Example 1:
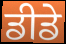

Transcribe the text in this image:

ਡੀਡੇ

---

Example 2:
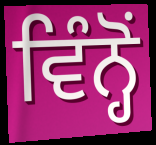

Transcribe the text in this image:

ਵਿੰਨ੍ਹੋਂ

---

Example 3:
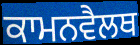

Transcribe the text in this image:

ਕਾਮਨਵੈਲਥ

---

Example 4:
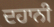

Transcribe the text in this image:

ਦਹਾਨੀ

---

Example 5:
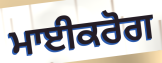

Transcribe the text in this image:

ਮਾਈਕਰੋਗ